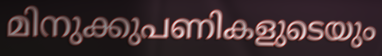
മിനുക്കുപണികളുടെയും